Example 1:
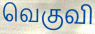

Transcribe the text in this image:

வெகுவி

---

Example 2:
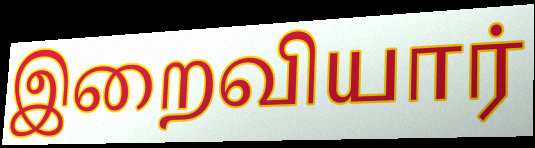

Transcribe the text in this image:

இறைவியார்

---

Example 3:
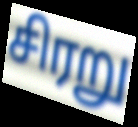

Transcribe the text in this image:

சிரறு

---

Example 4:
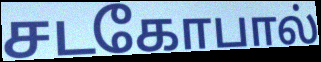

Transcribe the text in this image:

சடகோபால்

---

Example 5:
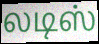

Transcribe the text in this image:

லடிஸ்